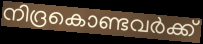
നിദ്രകൊണ്ടവർക്ക്